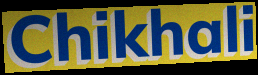
Chikhali